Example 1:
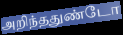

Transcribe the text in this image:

அறிந்ததுண்டோ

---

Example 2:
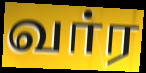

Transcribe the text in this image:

வர்ர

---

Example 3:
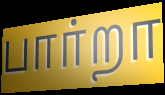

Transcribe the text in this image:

பார்றா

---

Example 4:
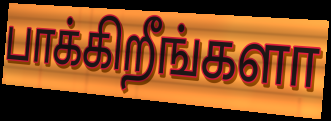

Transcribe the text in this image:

பாக்கிறீங்களா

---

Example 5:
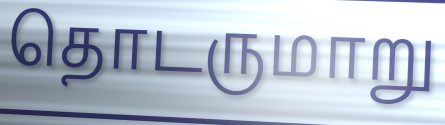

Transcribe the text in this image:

தொடருமாறு